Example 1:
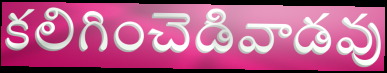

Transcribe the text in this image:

కలిగించెడివాడవు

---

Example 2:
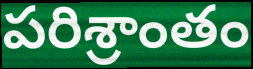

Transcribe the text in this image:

పరిశ్రాంతం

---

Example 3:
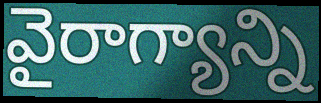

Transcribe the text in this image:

వైరాగ్యాన్ని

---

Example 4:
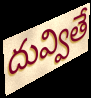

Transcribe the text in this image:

దువ్వితే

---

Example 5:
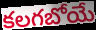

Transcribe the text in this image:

కలగబోయే